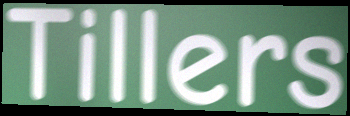
Tillers